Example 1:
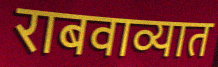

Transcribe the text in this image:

राबवाव्यात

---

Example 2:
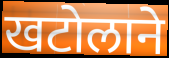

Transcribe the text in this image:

खटोलाने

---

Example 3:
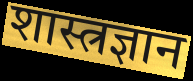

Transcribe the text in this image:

शास्त्रज्ञान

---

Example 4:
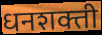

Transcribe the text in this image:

धनशक्ती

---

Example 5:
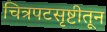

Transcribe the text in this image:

चित्रपटसृष्टीतून